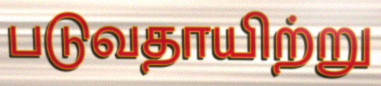
படுவதாயிற்று